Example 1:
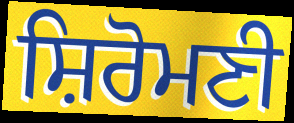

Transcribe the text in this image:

ਸ਼ਿਰੋਮਣੀ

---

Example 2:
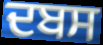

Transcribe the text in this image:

ਦਬਸ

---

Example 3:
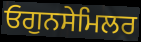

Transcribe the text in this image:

ਓਗੁਨਸੇਮਿਲਰ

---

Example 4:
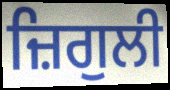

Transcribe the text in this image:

ਜ਼ਿਗੁਲੀ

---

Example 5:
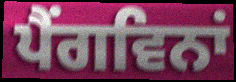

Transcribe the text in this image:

ਪੈਂਗਵਿਨਾਂ